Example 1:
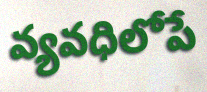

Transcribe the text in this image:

వ్యవధిలోపే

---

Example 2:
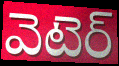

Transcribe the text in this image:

వెటెర్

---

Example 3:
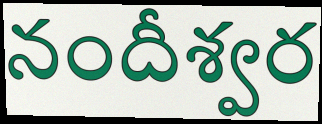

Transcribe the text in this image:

నందీశ్వర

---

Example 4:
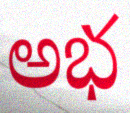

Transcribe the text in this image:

అభ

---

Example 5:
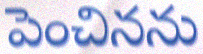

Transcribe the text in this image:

పెంచినను